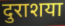
दुराशया